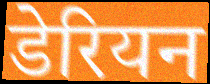
डेरियन